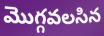
మొగ్గవలసిన